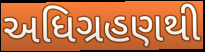
અધિગ્રહણથી